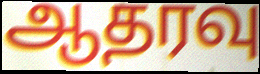
ஆதரவு